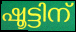
ഷൂട്ടിന്